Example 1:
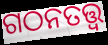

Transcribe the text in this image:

ଗଠନତତ୍ତ୍ୱ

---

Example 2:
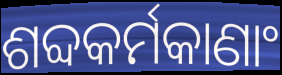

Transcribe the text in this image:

ଶବ୍ଦକର୍ମକାଣାଂ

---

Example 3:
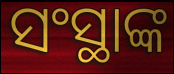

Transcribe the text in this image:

ସଂସ୍ଥାଙ୍କ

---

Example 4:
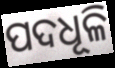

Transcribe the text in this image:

ପଦଧୂଳି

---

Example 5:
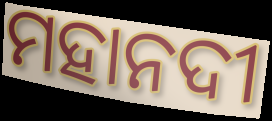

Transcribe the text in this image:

ମହାନଦୀ